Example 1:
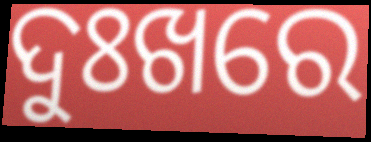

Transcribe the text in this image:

ଦୁଃଖରେ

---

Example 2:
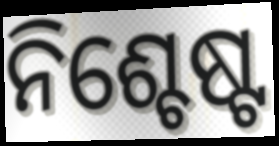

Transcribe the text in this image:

ନିଶ୍ଚେଷ୍ଟ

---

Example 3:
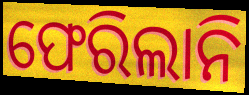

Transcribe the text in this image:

ଫେରିଲାନି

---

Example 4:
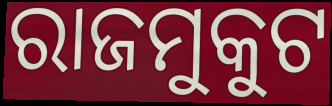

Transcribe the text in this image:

ରାଜମୁକୁଟ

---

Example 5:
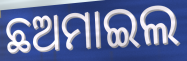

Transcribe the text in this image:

ଛଅମାଇଲ